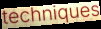
techniques